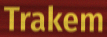
Trakem